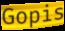
Gopis